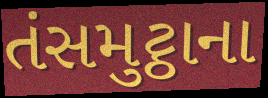
તંસમુટ્ઠાના